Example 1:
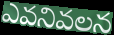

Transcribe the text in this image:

ఎవనివలన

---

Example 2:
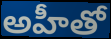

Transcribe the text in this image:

అహీతో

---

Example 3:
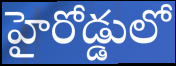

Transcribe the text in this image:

హైరోడ్డులో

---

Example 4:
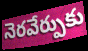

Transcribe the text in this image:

నెరవేర్పుకు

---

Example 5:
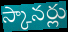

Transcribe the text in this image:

స్కానర్లు